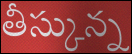
తీస్కున్న